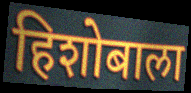
हिशोबाला